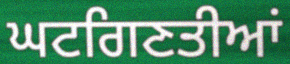
ਘਟਗਿਣਤੀਆਂ